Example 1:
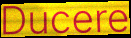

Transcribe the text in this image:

Ducere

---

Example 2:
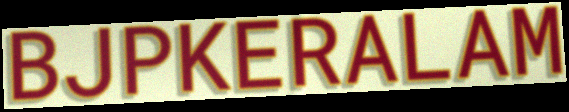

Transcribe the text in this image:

BJPKERALAM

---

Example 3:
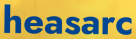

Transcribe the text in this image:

heasarc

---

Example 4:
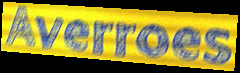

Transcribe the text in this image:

Averroes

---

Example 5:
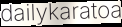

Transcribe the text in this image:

dailykaratoa